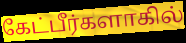
கேட்பீர்களாகில்